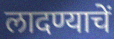
लादण्याचें